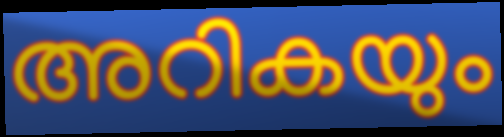
അറികയും